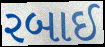
રબાઈ